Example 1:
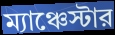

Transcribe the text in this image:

ম্যাঞ্চেস্টার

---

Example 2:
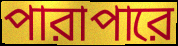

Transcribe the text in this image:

পারাপারে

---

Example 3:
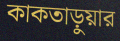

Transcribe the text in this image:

কাকতাড়ুয়ার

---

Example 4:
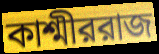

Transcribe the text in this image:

কাশ্মীররাজ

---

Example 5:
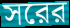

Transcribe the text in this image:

সরের